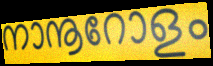
നാനൂറോളം